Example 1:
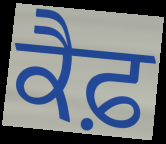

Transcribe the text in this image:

ਕੈਫ਼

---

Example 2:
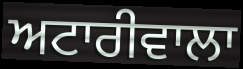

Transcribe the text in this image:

ਅਟਾਰੀਵਾਲਾ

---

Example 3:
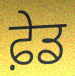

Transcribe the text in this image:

ਫ਼ੇਡ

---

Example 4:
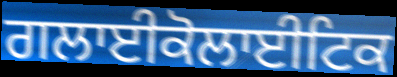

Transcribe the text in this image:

ਗਲਾਈਕੋਲਾਈਟਿਕ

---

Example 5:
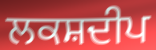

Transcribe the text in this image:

ਲਕਸ਼ਦੀਪ